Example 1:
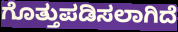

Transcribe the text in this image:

ಗೊತ್ತುಪಡಿಸಲಾಗಿದೆ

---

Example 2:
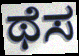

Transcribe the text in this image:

ಥೆಸ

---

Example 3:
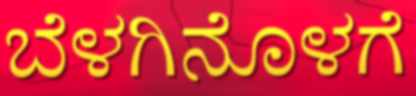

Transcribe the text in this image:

ಬೆಳಗಿನೊಳಗೆ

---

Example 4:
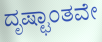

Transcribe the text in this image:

ದೃಷ್ಟಾಂತವೇ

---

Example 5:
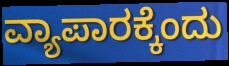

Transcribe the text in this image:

ವ್ಯಾಪಾರಕ್ಕೆಂದು